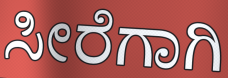
ಸೀರೆಗಾಗಿ